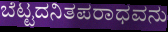
ಬೆಟ್ಟದನಿತಪರಾಧವನು